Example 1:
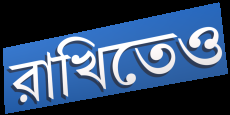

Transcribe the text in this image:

রাখিতেও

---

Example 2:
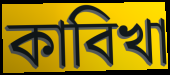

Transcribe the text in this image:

কাবিখা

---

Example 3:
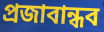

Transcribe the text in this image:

প্রজাবান্ধব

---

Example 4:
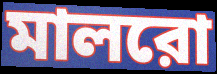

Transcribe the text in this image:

মালরো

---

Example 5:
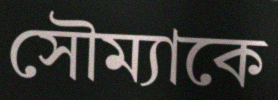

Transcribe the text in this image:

সৌম্যাকে